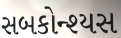
સબકોન્શ્યસ